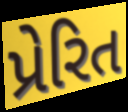
પ્રેરિત